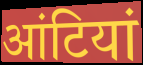
आंटियां